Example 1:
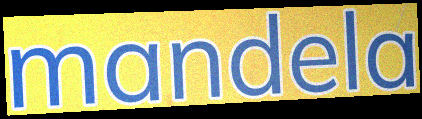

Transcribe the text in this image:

mandela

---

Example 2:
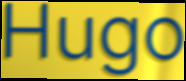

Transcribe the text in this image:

Hugo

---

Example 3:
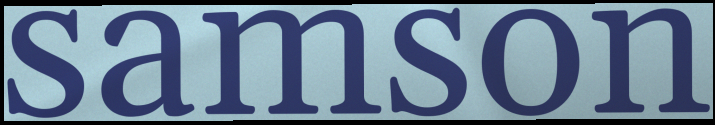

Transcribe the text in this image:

samson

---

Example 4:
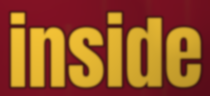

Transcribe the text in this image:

inside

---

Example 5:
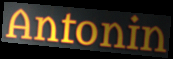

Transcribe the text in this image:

Antonin